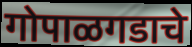
गोपाळगडाचे